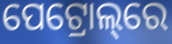
ପେଟ୍ରୋଲ୍‌ରେ